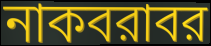
নাকবরাবর